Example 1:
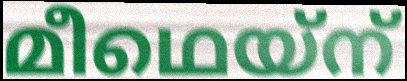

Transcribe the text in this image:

മീഥെയ്ന്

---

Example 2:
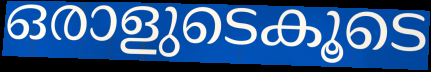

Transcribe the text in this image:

ഒരാളുടെകൂടെ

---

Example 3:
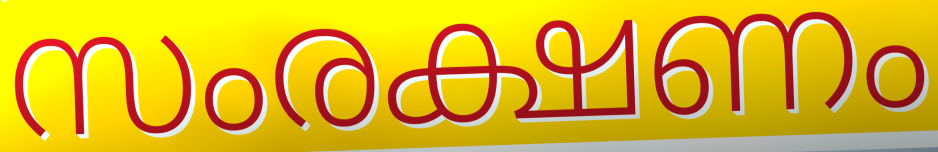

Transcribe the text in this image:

സംരക്ഷണം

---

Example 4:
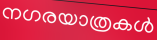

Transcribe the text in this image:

നഗരയാത്രകൾ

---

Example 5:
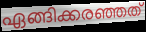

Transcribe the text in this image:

ഏങ്ങിക്കരഞ്ഞത്